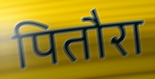
पितौरा